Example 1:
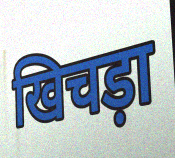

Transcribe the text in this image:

खिचड़ा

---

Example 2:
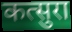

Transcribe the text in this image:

कत्सुरा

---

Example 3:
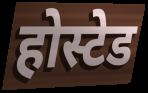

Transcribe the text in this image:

होस्टेड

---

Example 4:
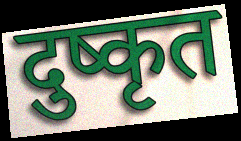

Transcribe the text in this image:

दुष्कृत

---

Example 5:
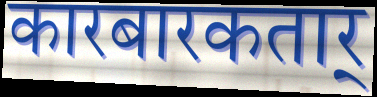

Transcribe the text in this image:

कारबारकतार्